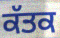
ਕੱਤਕ